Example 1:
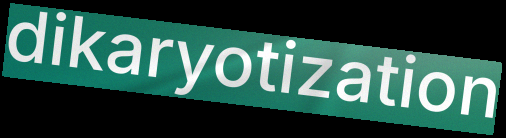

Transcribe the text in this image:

dikaryotization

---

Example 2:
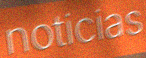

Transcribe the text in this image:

noticias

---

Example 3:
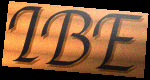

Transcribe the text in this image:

IBE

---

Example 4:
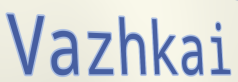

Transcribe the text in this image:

Vazhkai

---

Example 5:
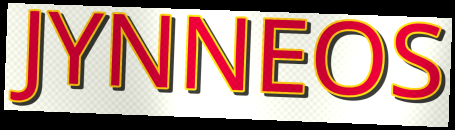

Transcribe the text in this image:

JYNNEOS